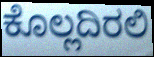
ಕೊಲ್ಲದಿರಲಿ